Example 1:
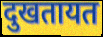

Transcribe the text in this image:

दुखतायत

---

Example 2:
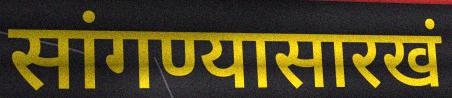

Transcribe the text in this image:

सांगण्यासारखं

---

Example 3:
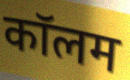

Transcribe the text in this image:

कॉलम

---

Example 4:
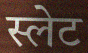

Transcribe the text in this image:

स्लेट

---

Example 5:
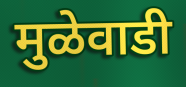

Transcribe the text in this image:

मुळेवाडी